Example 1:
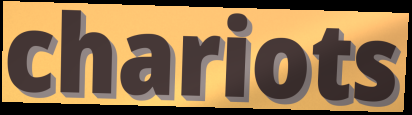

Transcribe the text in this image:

chariots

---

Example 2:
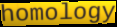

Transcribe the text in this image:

homology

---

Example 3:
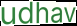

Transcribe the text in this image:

udhav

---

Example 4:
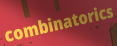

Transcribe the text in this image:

combinatorics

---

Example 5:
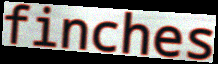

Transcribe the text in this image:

finches